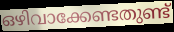
ഒഴിവാക്കേണ്ടതുണ്ട്